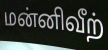
மன்னிவீற்